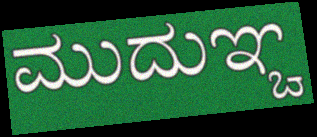
ಮುದುಞ್ಚ